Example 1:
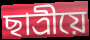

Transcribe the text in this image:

ছাত্ৰীয়ে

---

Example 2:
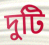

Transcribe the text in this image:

দুটি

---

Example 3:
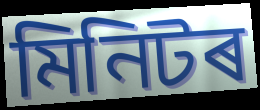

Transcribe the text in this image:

মিনিটৰ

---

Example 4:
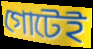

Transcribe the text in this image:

গোটেই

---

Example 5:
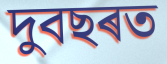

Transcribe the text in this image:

দুবছৰত